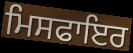
ਮਿਸਫਾਇਰ